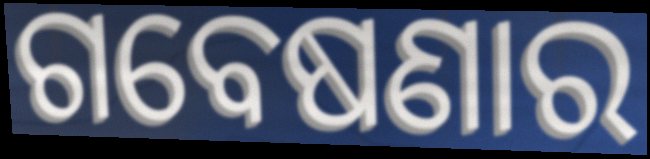
ଗବେଷଣାର